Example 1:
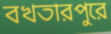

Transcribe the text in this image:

বখতারপুরে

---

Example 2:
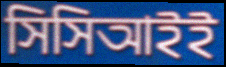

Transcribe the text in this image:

সিসিআইই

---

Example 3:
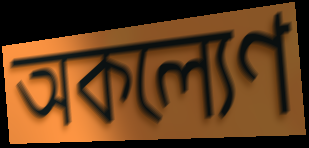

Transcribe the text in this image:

অকল্যেণ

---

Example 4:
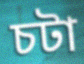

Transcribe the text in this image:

চটা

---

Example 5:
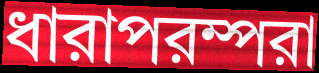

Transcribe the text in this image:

ধারাপরম্পরা